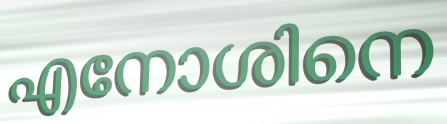
എനോശിനെ